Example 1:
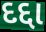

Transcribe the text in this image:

દદ્દા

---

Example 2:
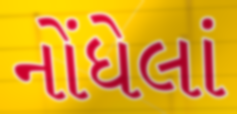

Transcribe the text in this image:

નોંધેલાં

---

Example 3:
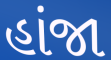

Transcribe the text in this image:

હાંજા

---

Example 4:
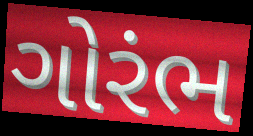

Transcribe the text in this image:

ગોરંભ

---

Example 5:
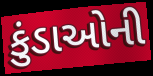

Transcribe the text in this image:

કુંડાઓની